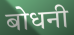
बोधनी